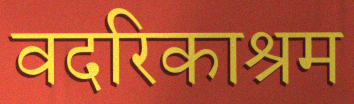
वदरिकाश्रम